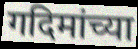
गदिमांच्या